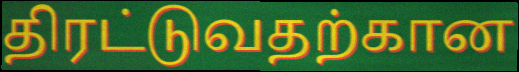
திரட்டுவதற்கான